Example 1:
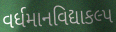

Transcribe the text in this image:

વર્ધમાનવિદ્યાકલ્પ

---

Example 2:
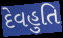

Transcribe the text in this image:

દેવહુતિ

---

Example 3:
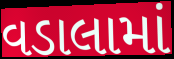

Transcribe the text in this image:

વડાલામાં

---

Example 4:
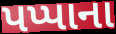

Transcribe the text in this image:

પપ્પાના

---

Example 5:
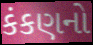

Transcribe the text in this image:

કંકણનો